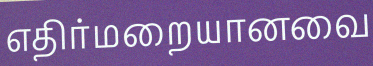
எதிர்மறையானவை